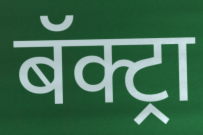
बॅक्ट्रा